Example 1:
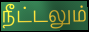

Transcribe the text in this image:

நீட்டலும்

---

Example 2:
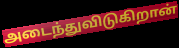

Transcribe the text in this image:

அடைந்துவிடுகிறான்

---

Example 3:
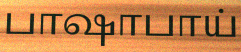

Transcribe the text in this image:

பாஷாபாய்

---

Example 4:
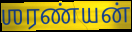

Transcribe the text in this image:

ஶரண்யன்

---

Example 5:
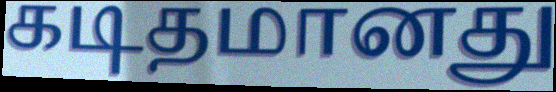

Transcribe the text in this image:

கடிதமானது